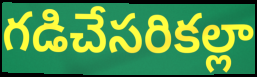
గడిచేసరికల్లా